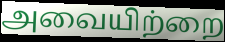
அவையிற்றை